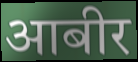
आबीर